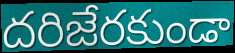
దరిజేరకుండా